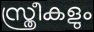
സ്ത്രീകളും